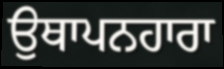
ਉਥਾਪਨਹਾਰਾ